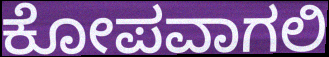
ಕೋಪವಾಗಲಿ